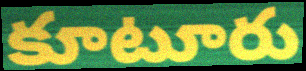
కూటూరు